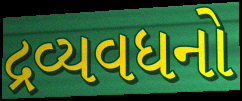
દ્રવ્યવધનો